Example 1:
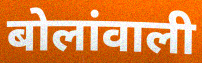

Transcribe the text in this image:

बोलांवाली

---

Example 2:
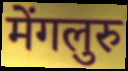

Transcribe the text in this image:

मेंगलुरु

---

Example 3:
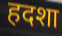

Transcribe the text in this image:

हदशा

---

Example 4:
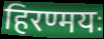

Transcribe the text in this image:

हिरण्मयः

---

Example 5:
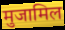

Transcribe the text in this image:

मुजामिल